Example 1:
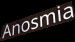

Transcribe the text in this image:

Anosmia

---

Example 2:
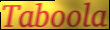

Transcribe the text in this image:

Taboola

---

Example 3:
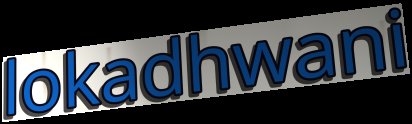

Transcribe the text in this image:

lokadhwani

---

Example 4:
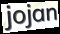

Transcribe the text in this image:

jojan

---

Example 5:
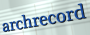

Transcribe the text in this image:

archrecord